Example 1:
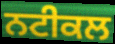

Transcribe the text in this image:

ਨਟੀਕਲ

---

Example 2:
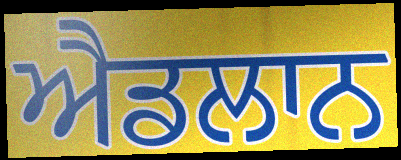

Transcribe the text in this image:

ਐਡਲਾਨ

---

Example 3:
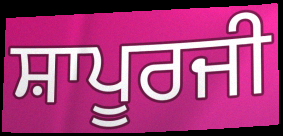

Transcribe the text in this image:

ਸ਼ਾਪੂਰਜੀ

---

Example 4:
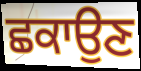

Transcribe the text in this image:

ਛਕਾਉਣ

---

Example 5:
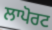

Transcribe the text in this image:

ਲਾਪੋਰਟ